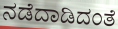
ನಡೆದಾಡಿದಂತೆ